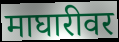
माघारीवर